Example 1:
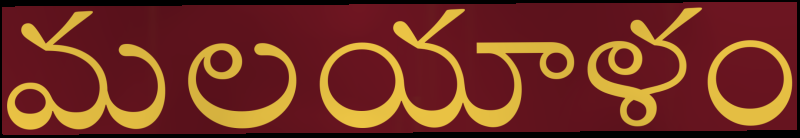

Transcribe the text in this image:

మలయాళం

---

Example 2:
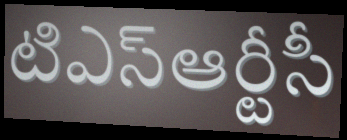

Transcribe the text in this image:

టిఎస్ఆర్టీసీ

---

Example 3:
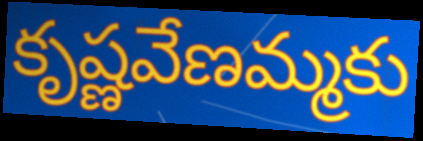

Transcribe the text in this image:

కృష్ణవేణమ్మకు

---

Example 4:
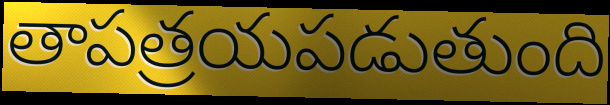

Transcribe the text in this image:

తాపత్రయపడుతుంది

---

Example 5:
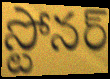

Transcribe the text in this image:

స్టోనర్